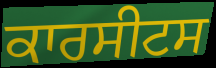
ਕਾਰਸੀਟਸ